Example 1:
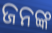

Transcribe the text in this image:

ଜନଙ୍କ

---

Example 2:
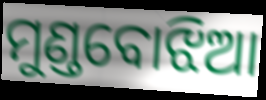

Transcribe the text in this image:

ମୁଣ୍ଡବୋଝିଆ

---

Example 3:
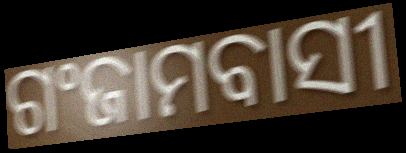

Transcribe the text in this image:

ଗଂଜାମବାସୀ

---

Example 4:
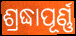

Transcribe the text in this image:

ଶ୍ରଦ୍ଧାପୂର୍ଣ୍ଣ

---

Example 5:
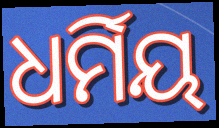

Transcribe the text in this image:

ଧର୍ମିୟ